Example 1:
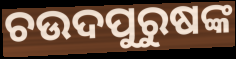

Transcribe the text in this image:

ଚଉଦପୁରୁଷଙ୍କ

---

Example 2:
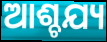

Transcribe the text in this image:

ଆଶ୍ଚଯ୍ୟ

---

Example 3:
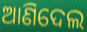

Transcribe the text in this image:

ଆଣିଦେଲ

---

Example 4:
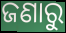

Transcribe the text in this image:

ଜଣାରୁ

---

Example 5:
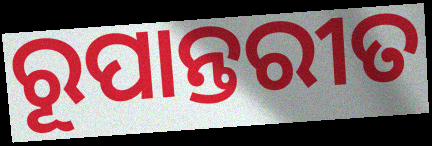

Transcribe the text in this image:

ରୂପାନ୍ତରୀତ